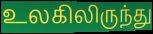
உலகிலிருந்து